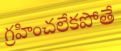
గ్రహించలేకపోతే